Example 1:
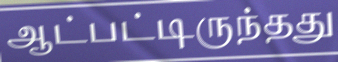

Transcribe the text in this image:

ஆட்பட்டிருந்தது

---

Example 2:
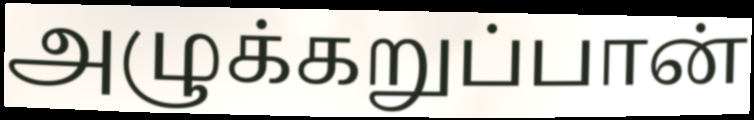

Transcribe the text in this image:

அழுக்கறுப்பான்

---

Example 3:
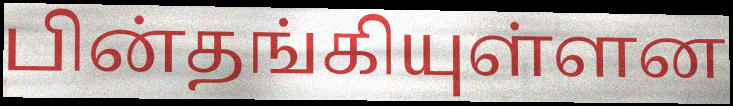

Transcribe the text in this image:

பின்தங்கியுள்ளன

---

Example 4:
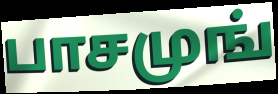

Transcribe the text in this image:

பாசமுங்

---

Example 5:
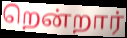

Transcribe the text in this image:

றென்றார்